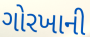
ગોરખાની